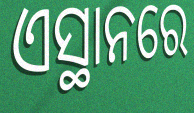
ଏସ୍ଥାନରେ